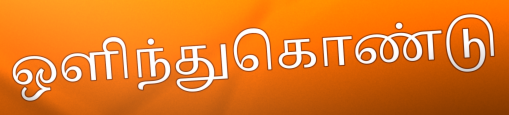
ஒளிந்துகொண்டு